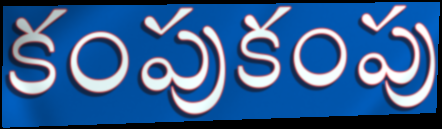
కంపుకంపు